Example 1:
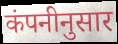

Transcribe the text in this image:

कंपनीनुसार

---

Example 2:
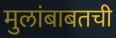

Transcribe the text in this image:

मुलांबाबतची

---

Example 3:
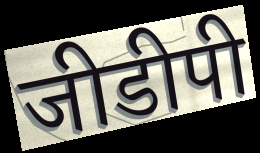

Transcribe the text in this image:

जीडीपी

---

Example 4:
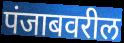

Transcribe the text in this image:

पंजाबवरील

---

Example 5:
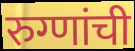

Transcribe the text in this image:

रुग्‍णांची